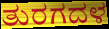
ತುರಗದಳ